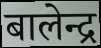
बालेन्द्र